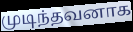
முடிந்தவனாக